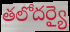
తలోదర్యై